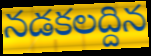
నడకలద్దిన